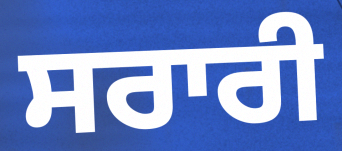
ਸਰਾਰੀ